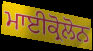
ਮਾਈਕ੍ਰੋਲੋਨ